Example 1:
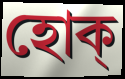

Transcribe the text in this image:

হোক্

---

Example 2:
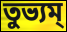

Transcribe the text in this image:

তুভ্যম্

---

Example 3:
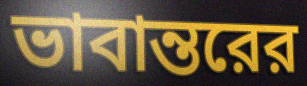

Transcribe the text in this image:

ভাবান্তরের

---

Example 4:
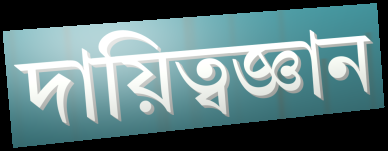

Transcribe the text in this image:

দায়িত্বজ্ঞান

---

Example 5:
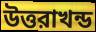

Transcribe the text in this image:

উত্তরাখন্ড